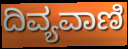
ದಿವ್ಯವಾಣಿ